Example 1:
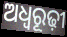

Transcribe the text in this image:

ଅଧ୍ଵରୂଢ଼ୀ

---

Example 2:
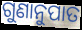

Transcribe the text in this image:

ଗୁଣାନୁପାତ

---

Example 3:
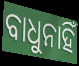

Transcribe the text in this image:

ବାଧୁନାହିଁ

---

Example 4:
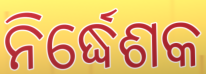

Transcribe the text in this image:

ନିର୍ଦ୍ଧେଶକ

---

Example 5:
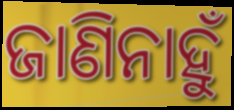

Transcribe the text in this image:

ଜାଣିନାହୁଁ